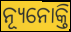
ନ୍ୟୂନୋକ୍ତି